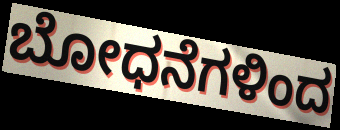
ಬೋಧನೆಗಳಿಂದ